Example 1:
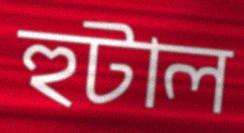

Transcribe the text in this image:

হুটাল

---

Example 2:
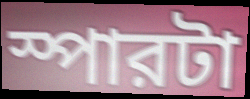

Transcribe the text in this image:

স্পারটা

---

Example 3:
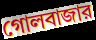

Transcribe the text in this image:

গোলবাজার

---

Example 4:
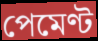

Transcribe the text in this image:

পেমেণ্ট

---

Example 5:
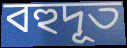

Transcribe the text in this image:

বহুদূত